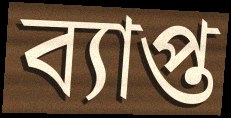
ব্যাপ্ত